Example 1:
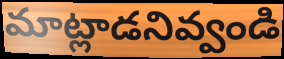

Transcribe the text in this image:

మాట్లాడనివ్వండి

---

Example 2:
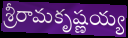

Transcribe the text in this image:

శ్రీరామకృష్ణయ్య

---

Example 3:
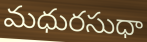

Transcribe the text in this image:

మధురసుధా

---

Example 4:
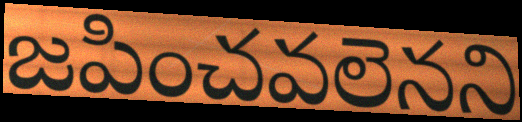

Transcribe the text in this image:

జపించవలెనని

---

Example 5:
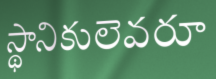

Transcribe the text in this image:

స్థానికులెవరూ